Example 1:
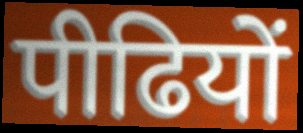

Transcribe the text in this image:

पीढियों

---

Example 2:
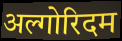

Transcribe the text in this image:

अल्गोरिदम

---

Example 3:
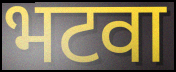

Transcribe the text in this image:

भटवा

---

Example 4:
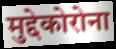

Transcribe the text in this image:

मुद्देकोरोना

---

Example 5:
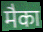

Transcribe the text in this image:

मैका